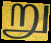
று